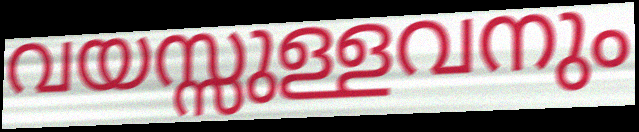
വയസ്സുള്ളവനും